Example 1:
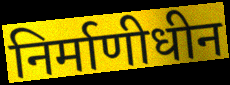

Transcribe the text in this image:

निर्माणीधीन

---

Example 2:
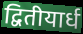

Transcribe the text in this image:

द्वितीयार्ध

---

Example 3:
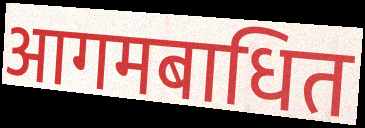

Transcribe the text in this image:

आगमबाधित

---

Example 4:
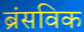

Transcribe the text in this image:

ब्रंसविक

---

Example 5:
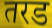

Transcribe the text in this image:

तरड